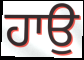
ਹਾਉ